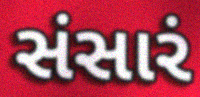
સંસારં